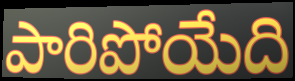
పారిపోయేది